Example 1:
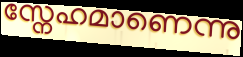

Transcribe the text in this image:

സ്നേഹമാണെന്നു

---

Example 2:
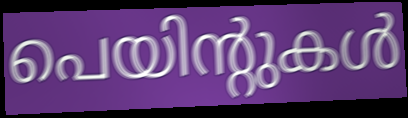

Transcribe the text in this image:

പെയിന്റുകൾ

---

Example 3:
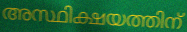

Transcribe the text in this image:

അസ്ഥിക്ഷയത്തിന്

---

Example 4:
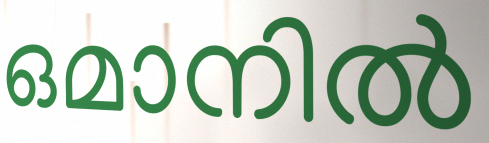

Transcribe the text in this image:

ഒമാനിൽ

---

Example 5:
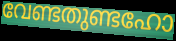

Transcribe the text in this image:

വേണ്ടതുണ്ടഹോ